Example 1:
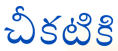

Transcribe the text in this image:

చీకటికి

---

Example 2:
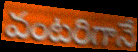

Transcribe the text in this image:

వంటరిగానే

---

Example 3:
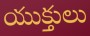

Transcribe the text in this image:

యుక్తులు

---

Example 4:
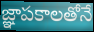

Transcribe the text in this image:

జ్ఞాపకాలతోనే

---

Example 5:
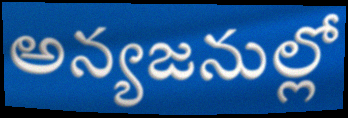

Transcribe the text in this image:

అన్యజనుల్లో